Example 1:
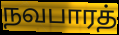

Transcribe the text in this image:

நவபாரத்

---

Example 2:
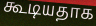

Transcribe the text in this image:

கூடியதாக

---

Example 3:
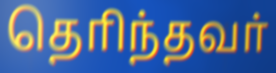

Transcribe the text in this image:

தெரிந்தவர்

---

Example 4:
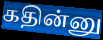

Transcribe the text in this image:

கதின்னு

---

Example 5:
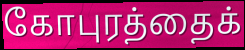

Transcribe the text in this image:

கோபுரத்தைக்